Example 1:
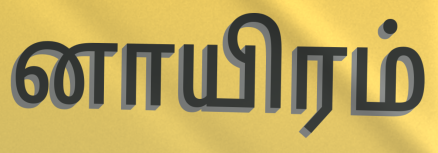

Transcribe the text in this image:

னாயிரம்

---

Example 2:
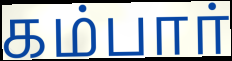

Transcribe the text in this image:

கம்பார்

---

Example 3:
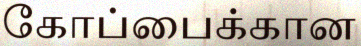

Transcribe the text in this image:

கோப்பைக்கான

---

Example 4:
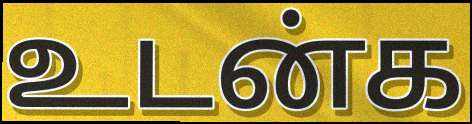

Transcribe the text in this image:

உடன்க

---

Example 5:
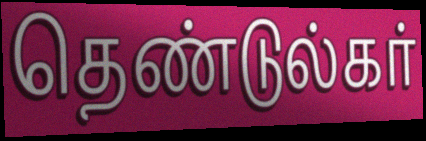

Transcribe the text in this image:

தெண்டுல்கர்